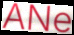
ANe